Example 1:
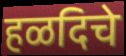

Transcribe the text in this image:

हळदिचे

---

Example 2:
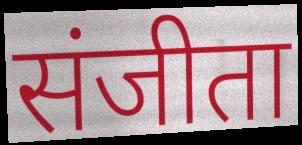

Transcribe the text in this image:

संजीता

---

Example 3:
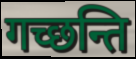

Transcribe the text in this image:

गच्छन्ति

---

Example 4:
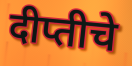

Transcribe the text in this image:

दीप्तीचे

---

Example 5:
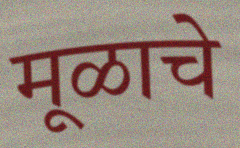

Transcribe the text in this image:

मूळाचे